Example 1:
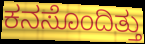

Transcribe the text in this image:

ಕನಸೊಂದಿತ್ತು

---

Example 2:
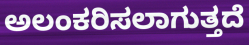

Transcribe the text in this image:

ಅಲಂಕರಿಸಲಾಗುತ್ತದೆ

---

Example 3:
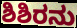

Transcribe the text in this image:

ಶಿಶಿರನು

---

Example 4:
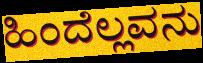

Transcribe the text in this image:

ಹಿಂದೆಲ್ಲವನು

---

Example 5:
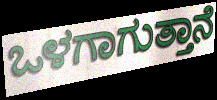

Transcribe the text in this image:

ಒಳಗಾಗುತ್ತಾನೆ